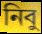
নিবু